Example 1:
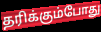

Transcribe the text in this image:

தரிக்கும்போது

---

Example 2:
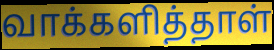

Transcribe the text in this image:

வாக்களித்தாள்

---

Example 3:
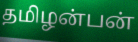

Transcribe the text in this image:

தமிழன்பன்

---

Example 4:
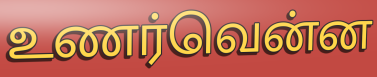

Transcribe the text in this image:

உணர்வென்ன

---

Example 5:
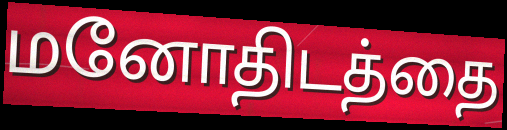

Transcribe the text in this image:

மனோதிடத்தை